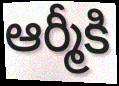
ఆర్మీకి